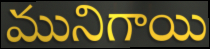
మునిగాయి